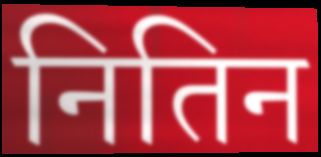
नितिन